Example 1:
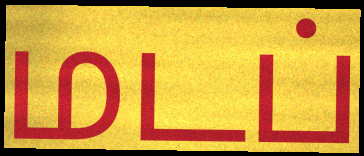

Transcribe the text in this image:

மடப்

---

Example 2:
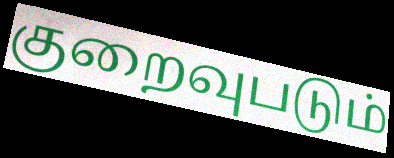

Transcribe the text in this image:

குறைவுபடும்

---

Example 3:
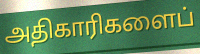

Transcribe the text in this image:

அதிகாரிகளைப்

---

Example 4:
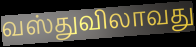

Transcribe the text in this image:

வஸ்துவிலாவது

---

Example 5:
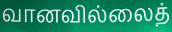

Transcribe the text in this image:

வானவில்லைத்